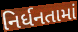
નિર્ધનતામાં